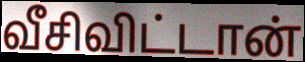
வீசிவிட்டான்